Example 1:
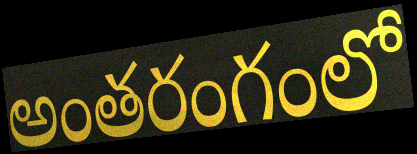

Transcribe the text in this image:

అంతరంగంలో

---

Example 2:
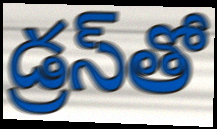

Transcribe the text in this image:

డ్రస్‌తో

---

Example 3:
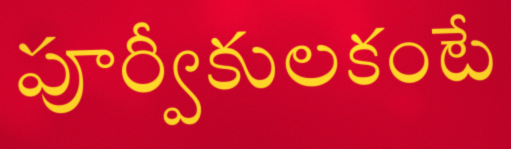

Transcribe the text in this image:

పూర్వీకులకంటే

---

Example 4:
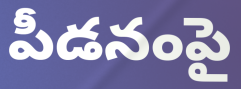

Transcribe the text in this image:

పీడనంపై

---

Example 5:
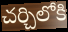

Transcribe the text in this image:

చర్చిలోకి